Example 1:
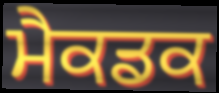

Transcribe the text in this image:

ਮੈਕਡਕ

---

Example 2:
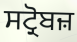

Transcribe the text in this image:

ਸਟ੍ਰੋਬਜ਼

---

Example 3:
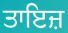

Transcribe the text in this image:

ਤਾਇਜ਼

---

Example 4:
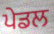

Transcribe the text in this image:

ਪੇਡਲ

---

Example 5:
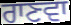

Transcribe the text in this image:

ਰਾਣਵਾ